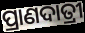
ପ୍ରାଣଦାତ୍ରୀ